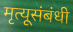
मृत्यूसंबंधी